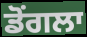
ਡੋਂਗਲਾ